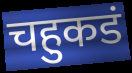
चहुकडं